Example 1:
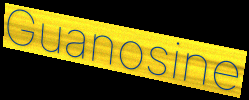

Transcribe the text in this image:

Guanosine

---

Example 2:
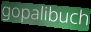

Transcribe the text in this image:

gopalibuch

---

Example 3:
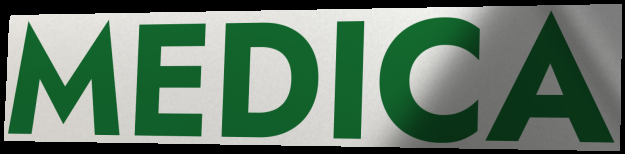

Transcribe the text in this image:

MEDICA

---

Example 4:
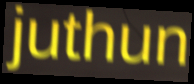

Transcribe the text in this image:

juthun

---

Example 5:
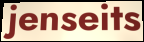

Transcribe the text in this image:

jenseits